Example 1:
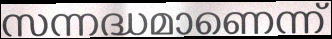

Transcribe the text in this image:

സന്നദ്ധമാണെന്ന്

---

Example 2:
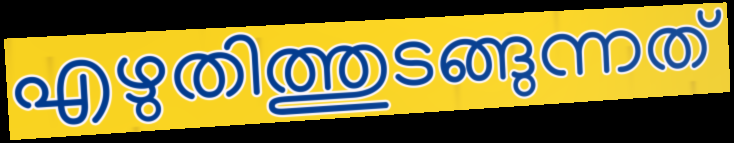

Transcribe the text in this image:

എഴുതിത്തുടങ്ങുന്നത്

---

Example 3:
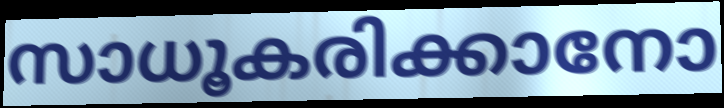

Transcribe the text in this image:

സാധൂകരിക്കാനോ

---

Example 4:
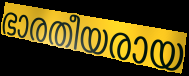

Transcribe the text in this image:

ഭാരതീയരായ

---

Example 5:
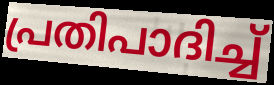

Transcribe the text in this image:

പ്രതിപാദിച്ച്